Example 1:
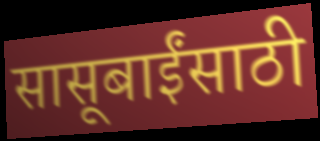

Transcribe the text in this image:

सासूबाईंसाठी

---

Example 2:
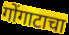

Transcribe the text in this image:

गोंगाटाचा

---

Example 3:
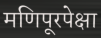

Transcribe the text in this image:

मणिपूरपेक्षा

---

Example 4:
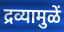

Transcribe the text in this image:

द्रव्यामुळें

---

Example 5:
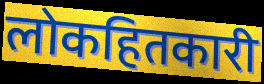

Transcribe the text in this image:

लोकहितकारी